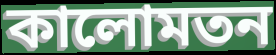
কালোমতন